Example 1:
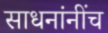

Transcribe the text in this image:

साधनांनींच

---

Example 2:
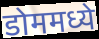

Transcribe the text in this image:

डोममध्ये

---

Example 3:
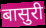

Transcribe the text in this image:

बासुरी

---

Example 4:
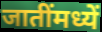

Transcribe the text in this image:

जातींमध्यें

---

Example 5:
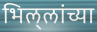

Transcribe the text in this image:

भिल्लांच्या